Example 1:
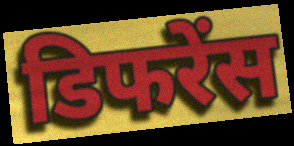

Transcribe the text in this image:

डिफरेंस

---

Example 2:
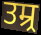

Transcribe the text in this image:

उम्र्र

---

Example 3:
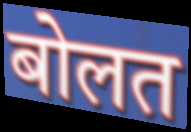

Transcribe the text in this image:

बोलत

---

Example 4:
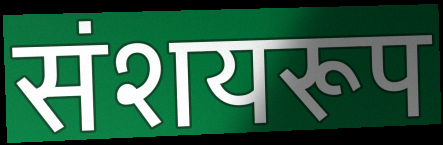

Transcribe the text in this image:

संशयरूप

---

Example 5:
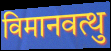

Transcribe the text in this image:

विमानवत्थु